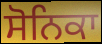
ਸੋਨਿਕਾ